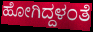
ಹೋಗಿದ್ದಳಂತೆ